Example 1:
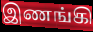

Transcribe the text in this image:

இணங்கி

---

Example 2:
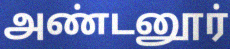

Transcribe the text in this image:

அண்டனூர்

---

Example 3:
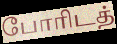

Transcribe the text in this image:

போரிடத்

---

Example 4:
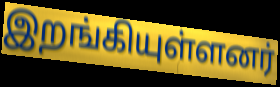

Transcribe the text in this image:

இறங்கியுள்ளனர்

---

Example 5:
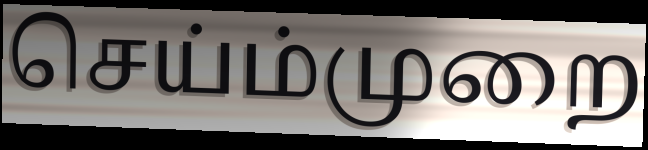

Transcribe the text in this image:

செய்ம்முறை